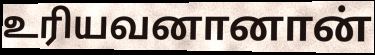
உரியவனானான்